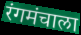
रंगमंचाला